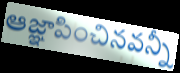
ఆజ్ఞాపించినవన్నీ